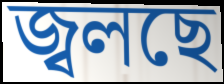
জ্বলছে